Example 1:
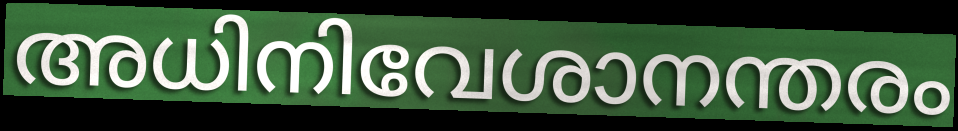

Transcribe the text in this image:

അധിനിവേശാനന്തരം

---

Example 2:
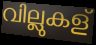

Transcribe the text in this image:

വില്ലുകള്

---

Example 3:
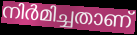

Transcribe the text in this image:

നിർമിച്ചതാണ്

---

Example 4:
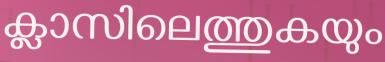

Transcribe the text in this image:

ക്ലാസിലെത്തുകയും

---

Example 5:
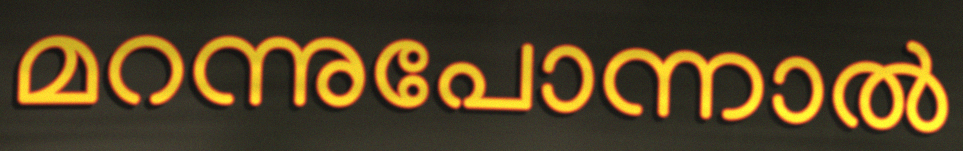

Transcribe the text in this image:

മറന്നുപോന്നാൽ